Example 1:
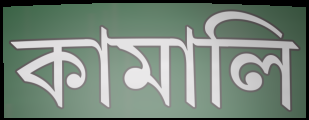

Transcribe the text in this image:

কামালি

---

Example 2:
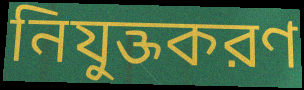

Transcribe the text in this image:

নিযুক্তকরণ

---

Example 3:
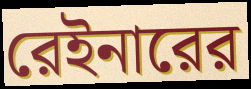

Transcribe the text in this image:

রেইনারের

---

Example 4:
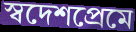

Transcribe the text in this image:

স্বদেশপ্রেমে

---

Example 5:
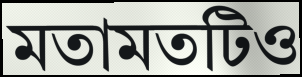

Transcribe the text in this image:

মতামতটিও